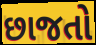
છાજતો